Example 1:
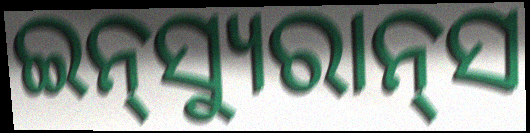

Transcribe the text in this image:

ଇନ୍‌ସ୍ୟୁରାନ୍‌ସ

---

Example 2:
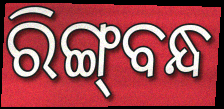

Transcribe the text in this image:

ରିଙ୍ଗ୍‌ବନ୍ଧ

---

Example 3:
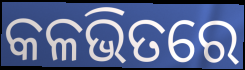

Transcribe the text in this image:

କଳଭିତରେ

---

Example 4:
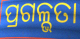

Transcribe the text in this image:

ପ୍ରଗଳ୍ଭତା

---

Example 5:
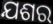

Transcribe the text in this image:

ଯଶର